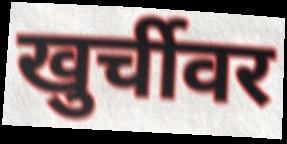
खुर्चीवर